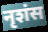
नृशंस